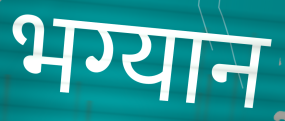
भग्यान